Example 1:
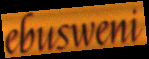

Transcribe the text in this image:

ebusweni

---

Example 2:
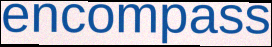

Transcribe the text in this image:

encompass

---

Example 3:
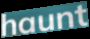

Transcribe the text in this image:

haunt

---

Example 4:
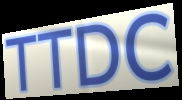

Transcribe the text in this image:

TTDC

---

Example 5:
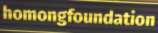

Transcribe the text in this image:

homongfoundation